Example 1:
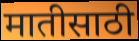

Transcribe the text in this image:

मातीसाठी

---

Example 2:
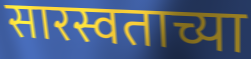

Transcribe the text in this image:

सारस्वताच्या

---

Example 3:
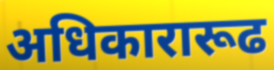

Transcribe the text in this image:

अधिकारारूढ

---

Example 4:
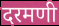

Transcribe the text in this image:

दरमणी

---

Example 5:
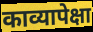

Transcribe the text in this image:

काव्यापेक्षा